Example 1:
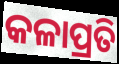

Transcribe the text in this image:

କଳାପ୍ରତି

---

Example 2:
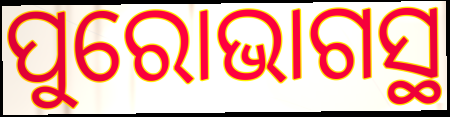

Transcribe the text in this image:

ପୁରୋଭାଗସ୍ଥ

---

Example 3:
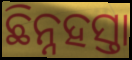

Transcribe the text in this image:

ଛିନ୍ନହସ୍ତା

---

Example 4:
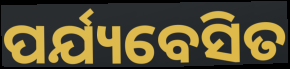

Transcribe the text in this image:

ପର୍ଯ୍ୟବେସିତ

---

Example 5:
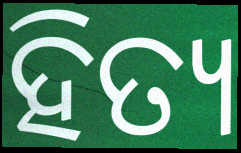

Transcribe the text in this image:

ହିତ୍ୟ